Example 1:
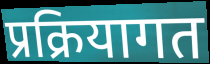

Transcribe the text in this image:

प्रक्रियागत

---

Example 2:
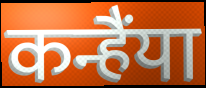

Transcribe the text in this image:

कन्हैंया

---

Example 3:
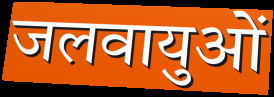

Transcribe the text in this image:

जलवायुओं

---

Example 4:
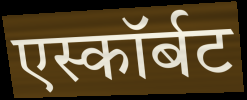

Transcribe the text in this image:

एस्कॉर्बट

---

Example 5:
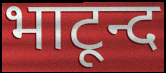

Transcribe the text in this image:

भाटून्द